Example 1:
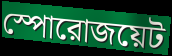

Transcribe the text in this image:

স্পোরোজয়েট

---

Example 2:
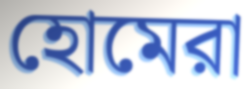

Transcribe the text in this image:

হোমেরা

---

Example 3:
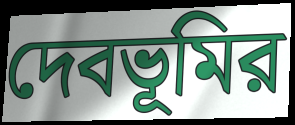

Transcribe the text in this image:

দেবভূমির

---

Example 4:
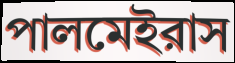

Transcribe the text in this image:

পালমেইরাস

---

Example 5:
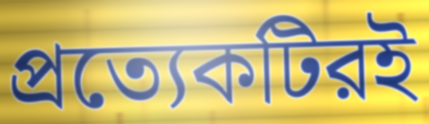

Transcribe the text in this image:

প্রত্যেকটিরই